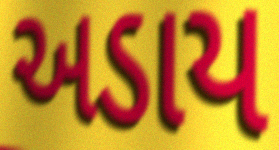
અડાય